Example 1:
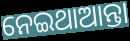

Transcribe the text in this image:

ନେଇଥାଆନ୍ତା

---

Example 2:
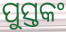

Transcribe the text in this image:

ପୁସ୍ତକଂ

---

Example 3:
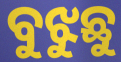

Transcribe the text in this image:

ବୁଝୁଛୁ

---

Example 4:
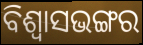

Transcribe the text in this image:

ବିଶ୍ଵାସଭଙ୍ଗର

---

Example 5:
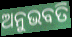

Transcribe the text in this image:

ଅନୁଭବତି